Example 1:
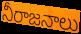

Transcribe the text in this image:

నీరాజనాలు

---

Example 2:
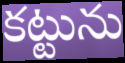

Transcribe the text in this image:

కట్టును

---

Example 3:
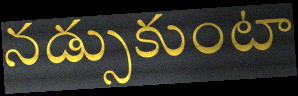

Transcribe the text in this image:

నడ్సుకుంటా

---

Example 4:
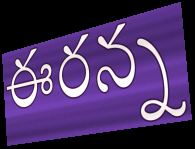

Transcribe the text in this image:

ఈరన్న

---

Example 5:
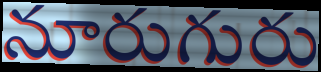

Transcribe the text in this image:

నూరుగురు